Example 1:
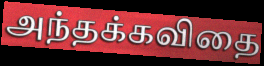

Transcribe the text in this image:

அந்தக்கவிதை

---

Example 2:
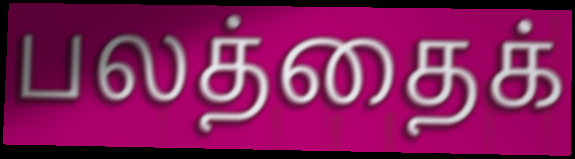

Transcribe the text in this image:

பலத்தைக்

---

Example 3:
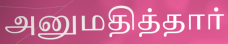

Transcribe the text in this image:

அனுமதித்தார்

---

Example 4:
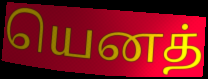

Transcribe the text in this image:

யெனத்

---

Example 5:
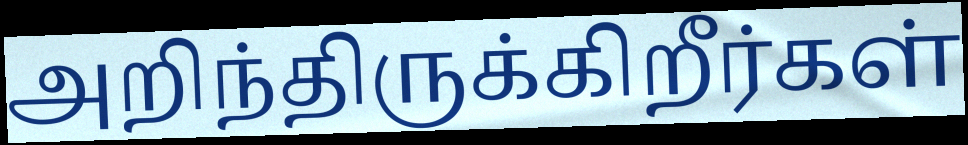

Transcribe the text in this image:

அறிந்திருக்கிறீர்கள்